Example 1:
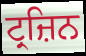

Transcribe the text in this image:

ਟ੍ਰਜ਼ਿਨ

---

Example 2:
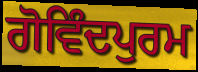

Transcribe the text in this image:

ਗੋਵਿੰਦਪੁਰਮ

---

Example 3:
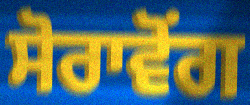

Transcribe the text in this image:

ਸੋਰਾਵੋਂਗ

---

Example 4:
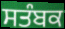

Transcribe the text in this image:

ਸਤੰਬਕ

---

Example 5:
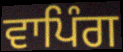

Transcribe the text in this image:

ਵਾਪਿੰਗ